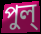
পুল্